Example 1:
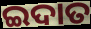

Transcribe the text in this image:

ଇଦାତ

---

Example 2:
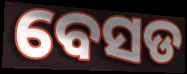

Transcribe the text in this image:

ବେସଡ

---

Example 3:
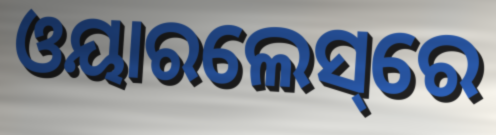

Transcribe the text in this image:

ଓୟାରଲେସ୍‌ରେ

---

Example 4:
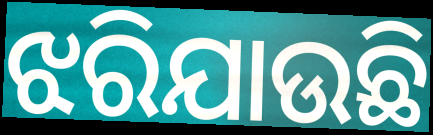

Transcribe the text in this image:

ଝରିଯାଉଛି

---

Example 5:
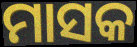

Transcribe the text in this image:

ମାସକ